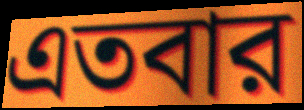
এতবার